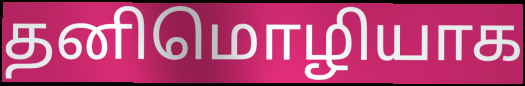
தனிமொழியாக